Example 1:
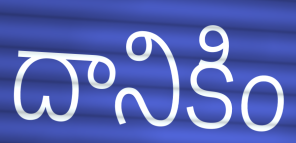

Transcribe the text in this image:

దానికిం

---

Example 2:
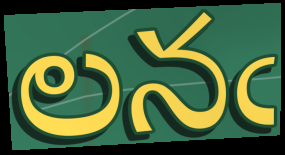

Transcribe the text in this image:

లనఁ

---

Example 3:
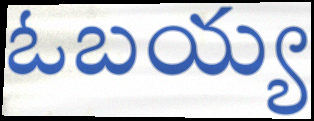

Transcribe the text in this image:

ఓబయ్య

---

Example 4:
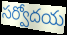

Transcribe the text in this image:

సర్వోదయ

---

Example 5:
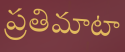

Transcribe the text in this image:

ప్రతిమాటా